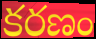
కరణం